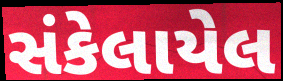
સંકેલાયેલ